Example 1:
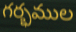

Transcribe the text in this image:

గర్భముల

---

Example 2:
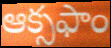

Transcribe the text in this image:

ఆక్సఫాం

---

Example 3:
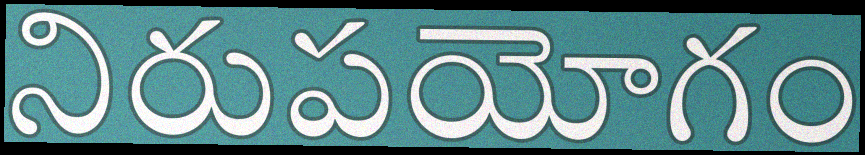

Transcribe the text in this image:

నిరుపయోగం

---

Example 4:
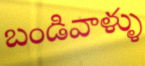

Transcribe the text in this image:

బండివాళ్ళు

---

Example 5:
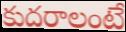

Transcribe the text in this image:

కుదరాలంటే